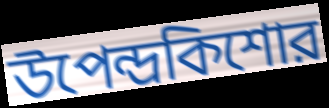
উপেন্দ্রকিশোর